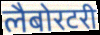
लैबोरटरी